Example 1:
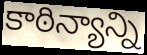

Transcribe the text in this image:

కాఠిన్యాన్ని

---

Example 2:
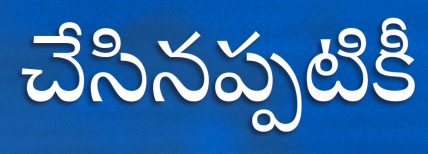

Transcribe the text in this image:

చేసినప్పటికీ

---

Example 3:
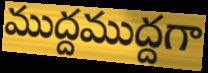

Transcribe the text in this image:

ముద్దముద్దగా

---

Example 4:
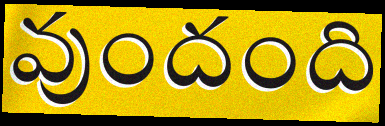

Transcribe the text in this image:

వుందంది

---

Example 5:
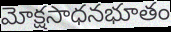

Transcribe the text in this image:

మోక్షసాధనభూతం